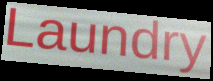
Laundry